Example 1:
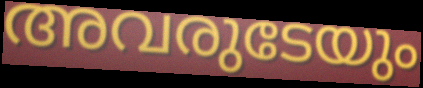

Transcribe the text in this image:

അവരുടേയും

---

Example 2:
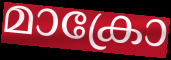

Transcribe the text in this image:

മാക്രോ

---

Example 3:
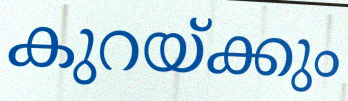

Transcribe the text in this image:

കുറയ്ക്കും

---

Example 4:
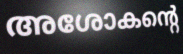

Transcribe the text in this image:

അശോകന്റെ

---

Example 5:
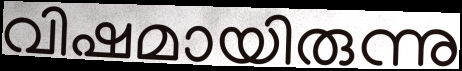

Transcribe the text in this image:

വിഷമായിരുന്നു